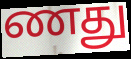
ணது